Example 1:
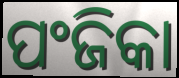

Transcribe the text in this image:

ପଂଜିକା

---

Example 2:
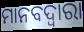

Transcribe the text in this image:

ମାନବଦ୍ୱାରା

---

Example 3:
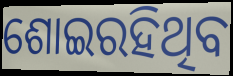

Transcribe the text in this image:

ଶୋଇରହିଥିବ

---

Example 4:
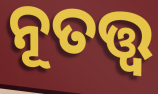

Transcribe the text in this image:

ନୂତତ୍ତ୍ବ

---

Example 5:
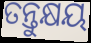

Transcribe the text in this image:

ତନ୍ତୁକ୍ଷୟ